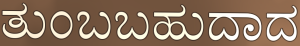
ತುಂಬಬಹುದಾದ